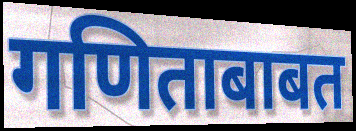
गणिताबाबत